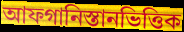
আফগানিস্তানভিত্তিক